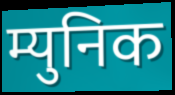
म्युनिक